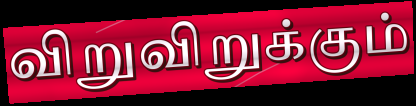
விறுவிறுக்கும்